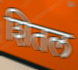
शितल